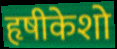
हृषीकेशो